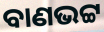
ବାଣଭଟ୍ଟ